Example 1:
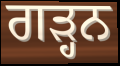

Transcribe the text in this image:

ਗੜ੍ਹਨ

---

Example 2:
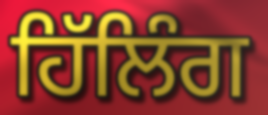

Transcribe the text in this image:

ਹਿੱਲਿੰਗ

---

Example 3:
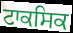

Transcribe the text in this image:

ਟਾਕਸਿਕ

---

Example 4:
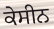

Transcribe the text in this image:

ਕੇਸੀਨ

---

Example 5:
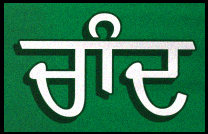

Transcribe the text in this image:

ਚਾੰਦ